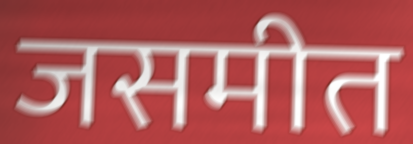
जसमीत